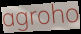
agroho